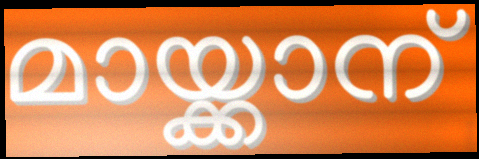
മായ്ക്കാന്